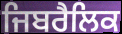
ਜਿਬਰੈਲਿਕ